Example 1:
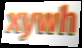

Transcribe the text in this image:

xywh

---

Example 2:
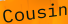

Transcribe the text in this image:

Cousin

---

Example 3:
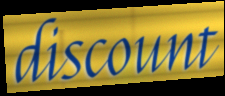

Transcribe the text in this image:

discount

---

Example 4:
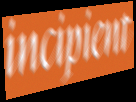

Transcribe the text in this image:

incipient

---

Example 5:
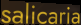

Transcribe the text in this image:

salicaria